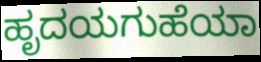
ಹೃದಯಗುಹೆಯಾ